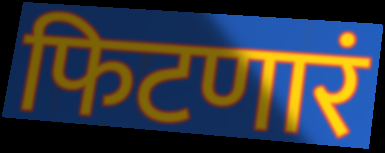
फिटणारं